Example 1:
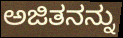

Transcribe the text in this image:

ಅಜಿತನನ್ನು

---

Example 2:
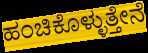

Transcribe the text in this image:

ಹಂಚಿಕೊಳ್ಳುತ್ತೇನೆ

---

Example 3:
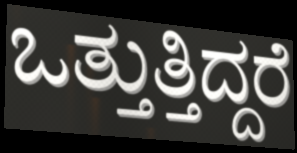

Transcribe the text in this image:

ಒತ್ತುತ್ತಿದ್ದರೆ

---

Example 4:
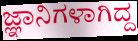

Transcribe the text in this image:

ಜ್ಞಾನಿಗಳಾಗಿದ್ದ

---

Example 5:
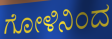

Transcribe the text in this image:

ಗೋಳಿನಿಂದ